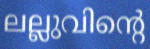
ലല്ലുവിന്റെ